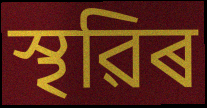
স্থৱিৰ